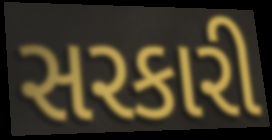
સરકારી